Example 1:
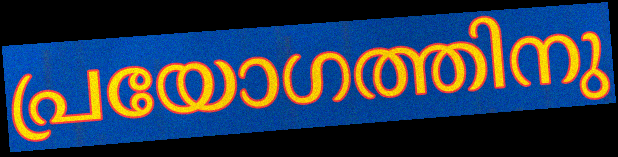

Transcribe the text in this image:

പ്രയോഗത്തിനു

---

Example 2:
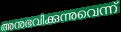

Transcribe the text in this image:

അനുഭവിക്കുന്നുവെന്ന്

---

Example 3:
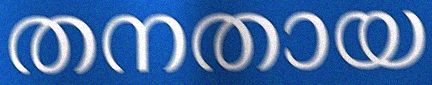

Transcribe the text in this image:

തനതായ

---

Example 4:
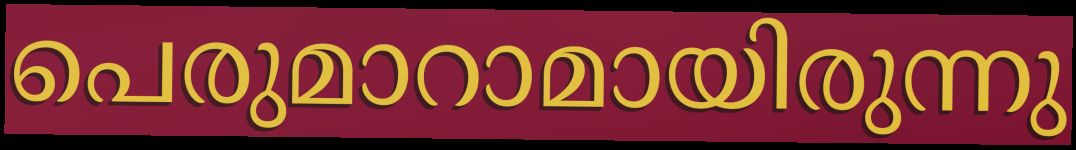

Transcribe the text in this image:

പെരുമാറാമായിരുന്നു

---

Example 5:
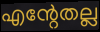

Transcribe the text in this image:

എന്റേതല്ല